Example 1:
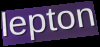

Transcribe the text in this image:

lepton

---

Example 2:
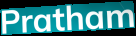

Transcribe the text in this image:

Pratham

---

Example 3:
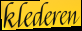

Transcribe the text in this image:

klederen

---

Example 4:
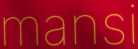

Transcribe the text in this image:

mansi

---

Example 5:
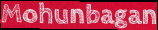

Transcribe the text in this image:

Mohunbagan